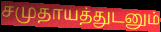
சமுதாயத்துடனும்